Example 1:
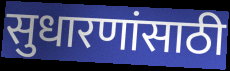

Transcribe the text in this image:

सुधारणांसाठी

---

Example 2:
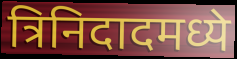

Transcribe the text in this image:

त्रिनिदादमध्ये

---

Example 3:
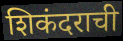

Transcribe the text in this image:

शिकंदराची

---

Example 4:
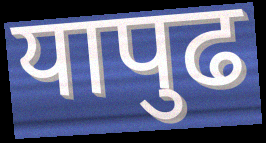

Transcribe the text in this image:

यापुढ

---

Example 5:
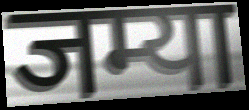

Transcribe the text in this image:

जम्या